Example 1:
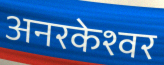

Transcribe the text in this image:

अनरकेश्वर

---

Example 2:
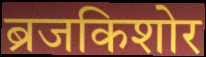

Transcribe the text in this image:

ब्रजकिशोर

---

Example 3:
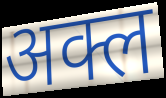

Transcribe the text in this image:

अक्ल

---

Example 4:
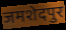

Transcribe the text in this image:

जमशेदपुर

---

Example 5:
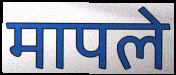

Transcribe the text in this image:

मापले